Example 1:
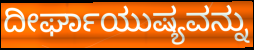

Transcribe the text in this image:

ದೀರ್ಘಾಯುಷ್ಯವನ್ನು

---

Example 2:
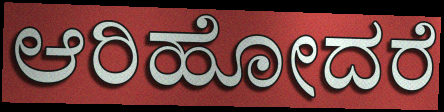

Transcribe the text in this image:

ಆರಿಹೋದರೆ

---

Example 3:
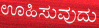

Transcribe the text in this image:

ಊಹಿಸುವುದು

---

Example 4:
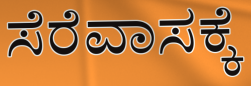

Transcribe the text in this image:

ಸೆರೆವಾಸಕ್ಕೆ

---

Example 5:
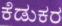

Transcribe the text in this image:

ಕೆಡುಕರ